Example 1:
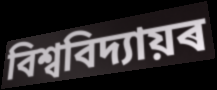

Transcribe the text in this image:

বিশ্ববিদ্যায়ৰ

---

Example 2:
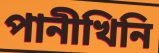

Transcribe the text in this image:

পানীখিনি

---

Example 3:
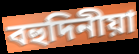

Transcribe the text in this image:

বহুদিনীয়া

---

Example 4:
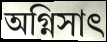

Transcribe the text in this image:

অগ্নিসাৎ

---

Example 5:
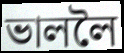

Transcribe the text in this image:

ভাললৈ